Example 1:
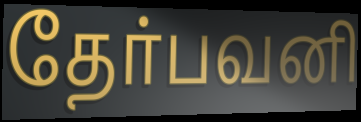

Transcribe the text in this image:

தேர்பவனி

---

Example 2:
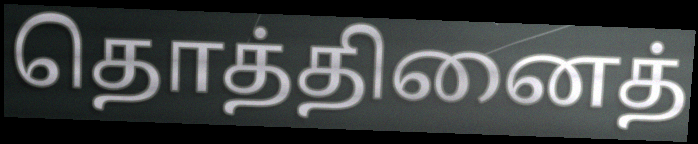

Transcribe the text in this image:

தொத்தினைத்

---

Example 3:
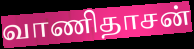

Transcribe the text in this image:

வாணிதாசன்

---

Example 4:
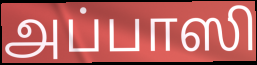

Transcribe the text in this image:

அப்பாஸி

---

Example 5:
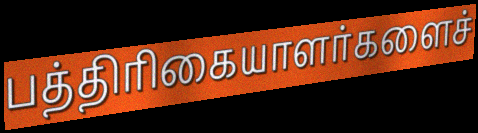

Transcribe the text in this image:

பத்திரிகையாளர்களைச்